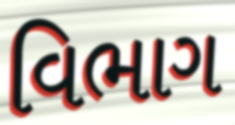
વિભાગ